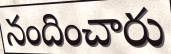
నందించారు